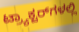
ಟ್ರ್ಯಾಕ್ಟರ್‌ಗಳಲ್ಲಿ